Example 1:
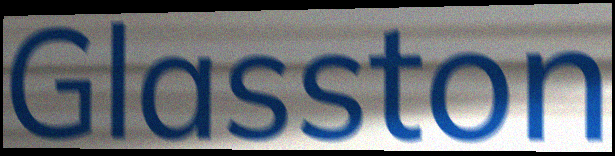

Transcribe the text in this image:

Glasston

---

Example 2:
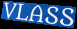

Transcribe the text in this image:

VLASS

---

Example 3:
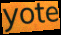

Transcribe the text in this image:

yote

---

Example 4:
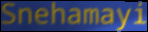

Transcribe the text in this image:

Snehamayi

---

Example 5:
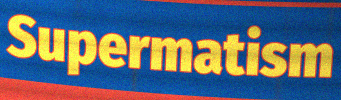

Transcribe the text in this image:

Supermatism